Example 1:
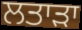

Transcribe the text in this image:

ਲਤਾੜਾ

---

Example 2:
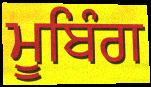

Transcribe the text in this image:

ਮੂਬਿੰਗ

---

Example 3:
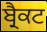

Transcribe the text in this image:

ਬ੍ਰੈਕਟ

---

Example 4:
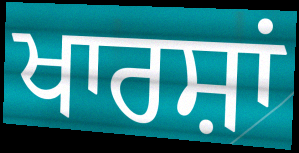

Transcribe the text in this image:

ਖਾਰਸ਼ਾਂ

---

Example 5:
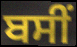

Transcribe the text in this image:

ਬਸੀਂ